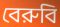
বেরুবি